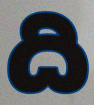
ది